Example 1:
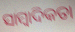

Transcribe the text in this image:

ସାମ୍ୱାଦିକତା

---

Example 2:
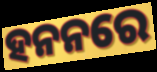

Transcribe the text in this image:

ହନନରେ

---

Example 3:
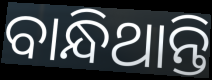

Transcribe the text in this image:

ବାନ୍ଧିଥାନ୍ତି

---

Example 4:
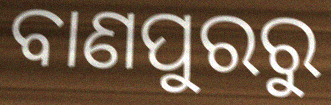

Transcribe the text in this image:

ବାଣପୁରରୁ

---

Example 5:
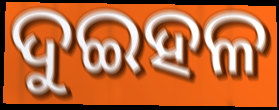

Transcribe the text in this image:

ଦୁଇହଳ